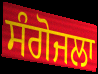
ਸੰਗੋਜਲਾ